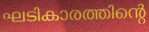
ഘടികാരത്തിന്റെ